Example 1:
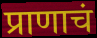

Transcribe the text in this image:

प्राणाचं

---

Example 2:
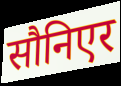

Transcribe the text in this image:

सौनिएर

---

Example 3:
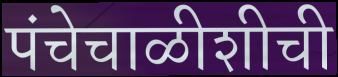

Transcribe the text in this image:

पंचेचाळीशीची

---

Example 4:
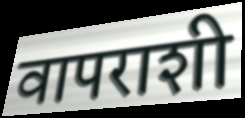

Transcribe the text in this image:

वापराशी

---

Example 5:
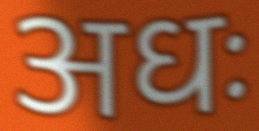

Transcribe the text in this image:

अधः